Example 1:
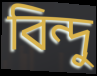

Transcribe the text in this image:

বিন্দু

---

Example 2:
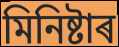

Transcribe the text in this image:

মিনিষ্টাৰ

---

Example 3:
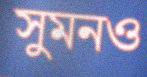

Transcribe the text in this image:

সুমনও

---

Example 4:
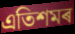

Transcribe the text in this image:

এতিশমৰ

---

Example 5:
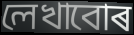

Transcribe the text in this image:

লেখাবোৰ